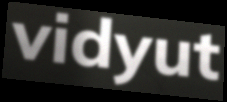
vidyut